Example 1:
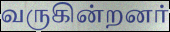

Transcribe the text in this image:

வருகின்றனர்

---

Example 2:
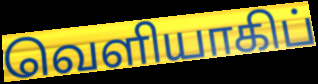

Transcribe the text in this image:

வெளியாகிப்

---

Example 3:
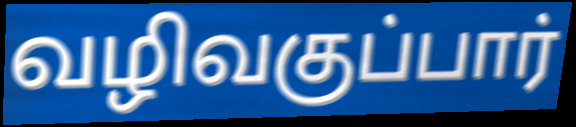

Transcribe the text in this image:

வழிவகுப்பார்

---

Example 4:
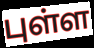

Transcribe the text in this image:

புள்ள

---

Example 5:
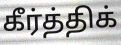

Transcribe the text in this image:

கீர்த்திக்